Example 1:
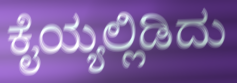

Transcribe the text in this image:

ಕೈಯ್ಯಲ್ಲಿಡಿದು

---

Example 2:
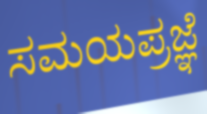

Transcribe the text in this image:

ಸಮಯಪ್ರಜ್ಞೆ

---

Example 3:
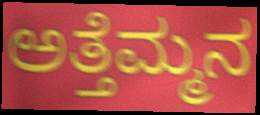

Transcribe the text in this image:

ಅತ್ತೆಮ್ಮನ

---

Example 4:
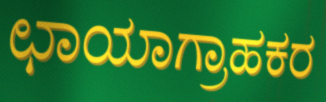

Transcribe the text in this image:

ಛಾಯಾಗ್ರಾಹಕರ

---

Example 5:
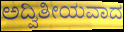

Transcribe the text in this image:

ಅದ್ವಿತೀಯವಾದ